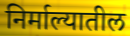
निर्माल्यातील